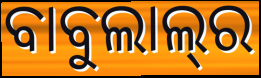
ବାବୁଲାଲ୍‍ର